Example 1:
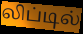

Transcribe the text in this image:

லிப்டில்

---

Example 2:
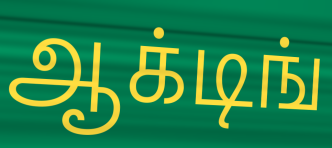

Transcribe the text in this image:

ஆக்டிங்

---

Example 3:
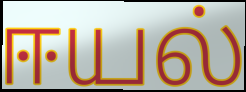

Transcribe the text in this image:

ஈயல்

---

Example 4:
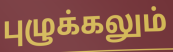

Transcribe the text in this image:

புழுக்கலும்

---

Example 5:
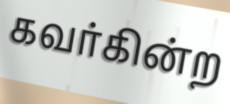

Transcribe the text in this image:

கவர்கின்ற